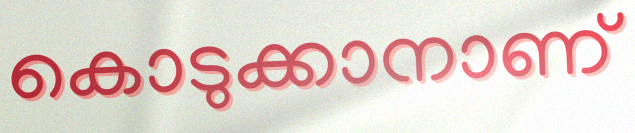
കൊടുക്കാനാണ്